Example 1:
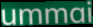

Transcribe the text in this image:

ummai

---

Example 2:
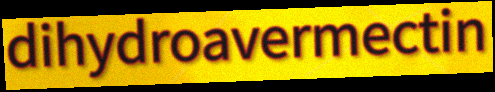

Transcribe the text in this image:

dihydroavermectin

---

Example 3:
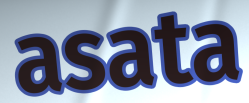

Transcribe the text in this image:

asata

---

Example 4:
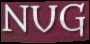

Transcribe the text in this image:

NUG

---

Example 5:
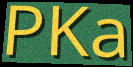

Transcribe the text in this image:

PKa